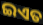
ଇଏତ